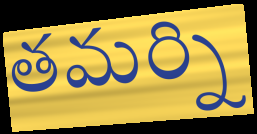
తమర్ని